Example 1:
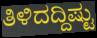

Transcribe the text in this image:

ತಿಳಿದದ್ದಿಷ್ಟು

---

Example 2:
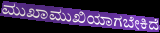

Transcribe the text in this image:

ಮುಖಾಮುಖಿಯಾಗಬೇಕಿದೆ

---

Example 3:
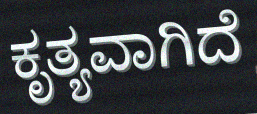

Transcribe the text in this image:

ಕೃತ್ಯವಾಗಿದೆ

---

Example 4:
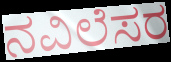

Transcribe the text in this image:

ನವಿಲೆಸರ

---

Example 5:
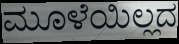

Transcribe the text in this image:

ಮೂಳೆಯಿಲ್ಲದ